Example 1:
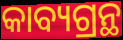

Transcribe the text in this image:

କାବ୍ୟଗ୍ରନ୍ଥ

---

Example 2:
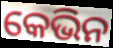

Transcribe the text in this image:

କେଭିନ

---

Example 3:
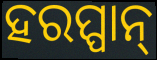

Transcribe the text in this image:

ହରପ୍ପାନ୍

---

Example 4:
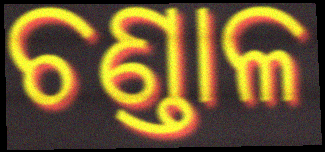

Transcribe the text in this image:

ଚଣ୍ଡାଳ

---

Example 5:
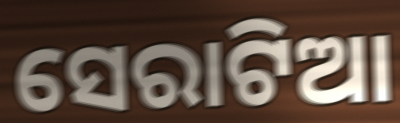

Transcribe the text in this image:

ସେରାଟିଆ